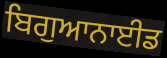
ਬਿਗੁਆਨਾਈਡ